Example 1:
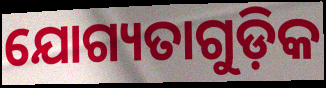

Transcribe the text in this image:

ଯୋଗ୍ୟତାଗୁଡ଼ିକ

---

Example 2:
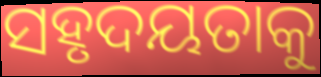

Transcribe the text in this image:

ସହୃଦୟତାକୁ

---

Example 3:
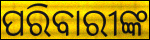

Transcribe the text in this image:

ପରିବାରୀଙ୍କ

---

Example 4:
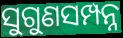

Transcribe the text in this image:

ସୁଗୁଣସମ୍ପନ୍ନ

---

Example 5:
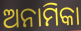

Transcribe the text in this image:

ଅନାମିକା